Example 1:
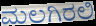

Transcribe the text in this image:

ಮಲಗಿರಲಿ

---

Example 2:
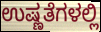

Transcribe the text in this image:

ಉಷ್ಣತೆಗಳಲ್ಲಿ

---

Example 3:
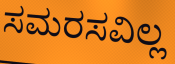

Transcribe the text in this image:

ಸಮರಸವಿಲ್ಲ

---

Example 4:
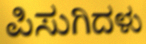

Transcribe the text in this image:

ಪಿಸುಗಿದಳು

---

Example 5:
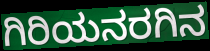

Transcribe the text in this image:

ಗಿರಿಯನರಗಿನ